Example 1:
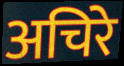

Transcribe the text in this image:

अचिरे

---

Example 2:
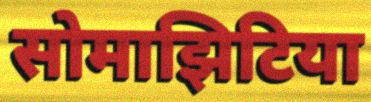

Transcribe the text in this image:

सोमाझिटिया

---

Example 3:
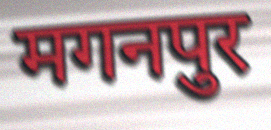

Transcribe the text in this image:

मगनपुर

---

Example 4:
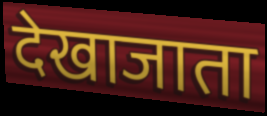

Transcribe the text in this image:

देखाजाता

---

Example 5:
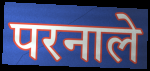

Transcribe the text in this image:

परनाले